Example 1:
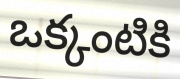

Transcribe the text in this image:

ఒక్కంటికి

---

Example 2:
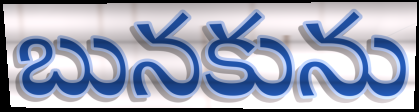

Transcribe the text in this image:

బునకును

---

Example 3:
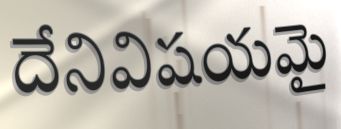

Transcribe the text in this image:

దేనివిషయమై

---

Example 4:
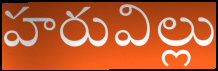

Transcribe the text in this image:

హరువిల్లు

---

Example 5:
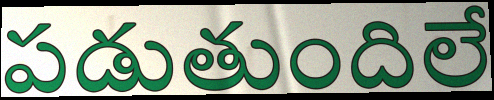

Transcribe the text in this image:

పడుతుందిలే